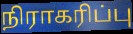
நிராகரிப்பு